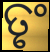
ତୃଂ